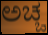
ಅಚ್ಚ